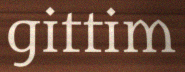
gittim